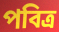
পবিত্ৰ